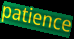
patience